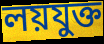
লয়যুক্ত